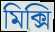
মিক্সি